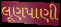
લૂણપાણી